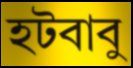
হটবাবু